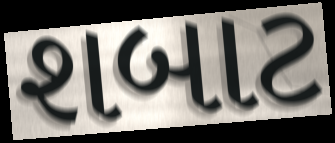
શબાટ